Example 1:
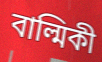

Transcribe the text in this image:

বাল্মিকী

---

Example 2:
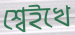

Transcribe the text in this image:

শ্বেইখে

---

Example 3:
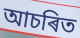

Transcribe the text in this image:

আচৰিত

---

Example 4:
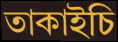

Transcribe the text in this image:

তাকাইচি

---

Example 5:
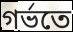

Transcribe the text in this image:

গৰ্ভতে